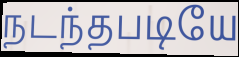
நடந்தபடியே